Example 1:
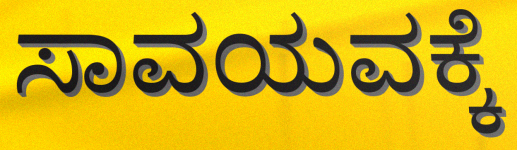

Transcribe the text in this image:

ಸಾವಯವಕ್ಕೆ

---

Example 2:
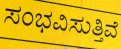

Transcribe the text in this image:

ಸಂಭವಿಸುತ್ತಿವೆ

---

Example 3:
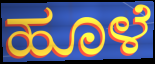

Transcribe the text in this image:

ಹೂಳೆ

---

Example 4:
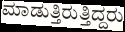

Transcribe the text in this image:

ಮಾಡುತ್ತಿರುತ್ತಿದ್ದರು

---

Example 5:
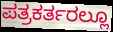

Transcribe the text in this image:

ಪತ್ರಕರ್ತರಲ್ಲೂ